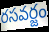
రసవర్జం